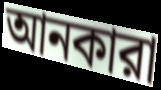
আনকারা